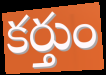
కర్తుం